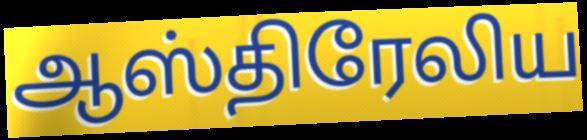
ஆஸ்திரேலிய